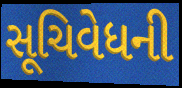
સૂચિવેધની